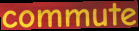
commute